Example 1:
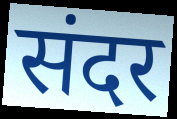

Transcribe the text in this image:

संदर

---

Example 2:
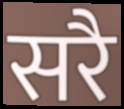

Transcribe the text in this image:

सरै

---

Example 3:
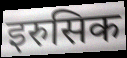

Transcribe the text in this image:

इरुसिक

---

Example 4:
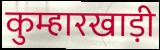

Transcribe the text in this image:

कुम्हारखाड़ी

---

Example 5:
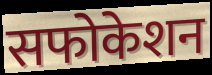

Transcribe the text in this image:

सफोकेशन